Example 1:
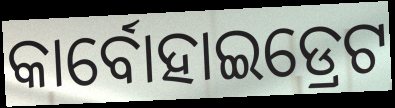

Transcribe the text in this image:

କାର୍ବୋହାଇଡ୍ରେଟ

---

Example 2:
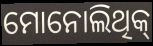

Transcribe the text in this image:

ମୋନୋଲିଥିକ୍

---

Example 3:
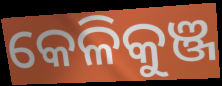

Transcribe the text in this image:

କେଳିକୁଞ୍ଜ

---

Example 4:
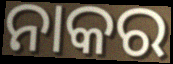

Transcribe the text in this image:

ନାକର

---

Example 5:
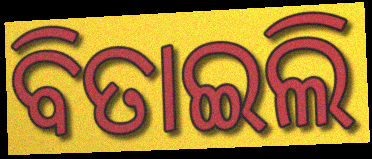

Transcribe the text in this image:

ବିତାଇଲି